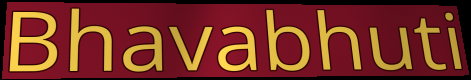
Bhavabhuti